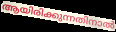
ആയിരിക്കുന്നതിനാൽ